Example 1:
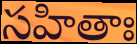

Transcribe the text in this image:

సహితాః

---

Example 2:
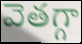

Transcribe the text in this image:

వెతగ్గా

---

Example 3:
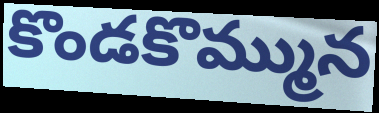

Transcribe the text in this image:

కొండకొమ్మున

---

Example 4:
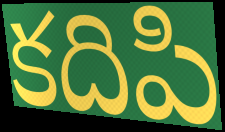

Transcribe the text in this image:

కదిపి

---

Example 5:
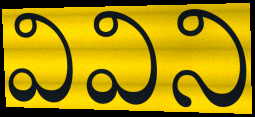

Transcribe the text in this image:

వివిని